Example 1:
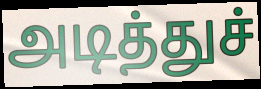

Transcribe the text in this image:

அடித்துச்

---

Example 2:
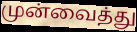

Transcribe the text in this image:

முன்வைத்து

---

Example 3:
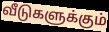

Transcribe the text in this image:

வீடுகளுக்கும்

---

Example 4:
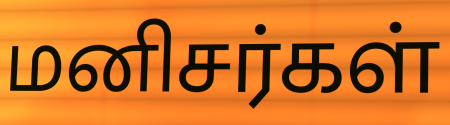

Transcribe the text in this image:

மனிசர்கள்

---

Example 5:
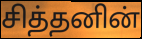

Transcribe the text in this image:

சித்தனின்